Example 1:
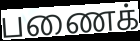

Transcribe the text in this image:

பணைக்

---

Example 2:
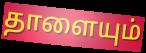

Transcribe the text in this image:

தாளையும்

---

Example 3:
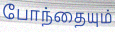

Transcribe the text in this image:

போந்தையும்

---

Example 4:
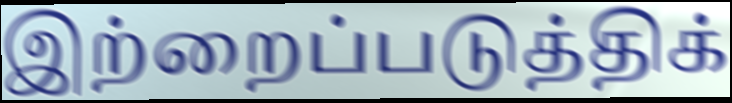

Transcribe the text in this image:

இற்றைப்படுத்திக்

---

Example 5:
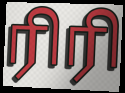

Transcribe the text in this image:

ரிரி